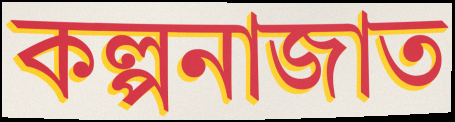
কল্পনাজাত